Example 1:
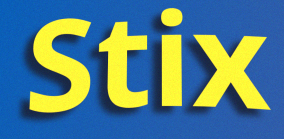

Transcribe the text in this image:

Stix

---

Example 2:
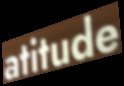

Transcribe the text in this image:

atitude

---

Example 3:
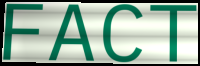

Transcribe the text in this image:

FACT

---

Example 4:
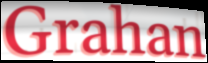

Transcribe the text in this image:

Grahan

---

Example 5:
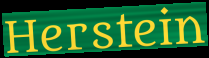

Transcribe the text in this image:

Herstein